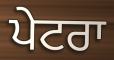
ਪੇਟਰਾ